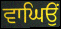
ਵਾਘਿਉਂ